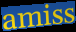
amiss